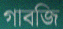
গাবজি